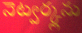
నెట్వర్క్లను